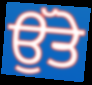
ਉੱਤੇ